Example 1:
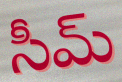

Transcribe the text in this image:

సీమ్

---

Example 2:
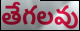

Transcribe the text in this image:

తేగలవు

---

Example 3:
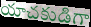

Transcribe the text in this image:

యాచకుడిగా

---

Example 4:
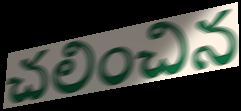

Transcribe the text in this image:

చలించిన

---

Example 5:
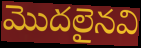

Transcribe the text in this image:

మొదలైనవి